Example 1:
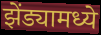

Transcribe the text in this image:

झेंड्यामध्ये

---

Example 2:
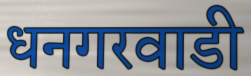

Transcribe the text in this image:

धनगरवाडी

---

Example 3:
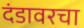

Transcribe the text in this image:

दंडावरचा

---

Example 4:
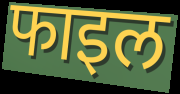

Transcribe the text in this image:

फाइल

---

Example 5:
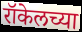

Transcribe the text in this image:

रॉकेलच्या